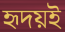
হৃদয়ই